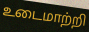
உடைமாற்றி